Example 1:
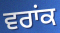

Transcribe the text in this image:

ਵਰਾਂਕ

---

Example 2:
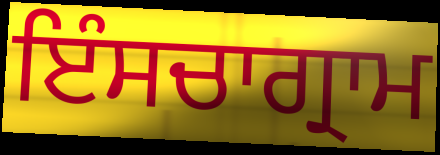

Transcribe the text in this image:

ਇੰਸਚਾਗ੍ਰਾਮ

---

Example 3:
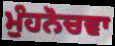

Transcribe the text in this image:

ਮੁੰਹਨੋਚਵਾ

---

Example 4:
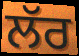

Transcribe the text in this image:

ਲੱਰ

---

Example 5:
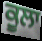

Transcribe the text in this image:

ਕੂਲਾ